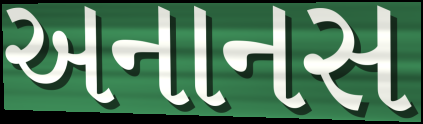
અનાનસ